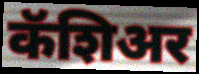
कॅशिअर